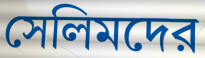
সেলিমদের